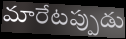
మారేటప్పుడు